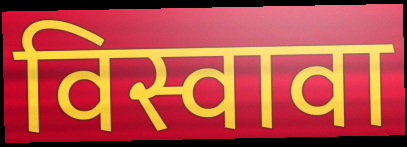
विस्वावा